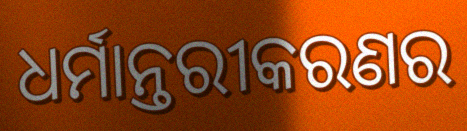
ଧର୍ମାନ୍ତରୀକରଣର